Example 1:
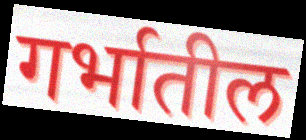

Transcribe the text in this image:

गर्भातील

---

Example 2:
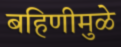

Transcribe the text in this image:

बहिणीमुळे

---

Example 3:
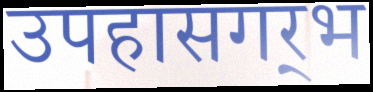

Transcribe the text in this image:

उपहासगर्भ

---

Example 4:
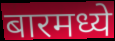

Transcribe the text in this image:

बारमध्ये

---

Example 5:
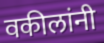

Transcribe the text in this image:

वकीलांनी